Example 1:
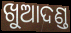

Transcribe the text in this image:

ଖୁଆଦଣ୍ଡ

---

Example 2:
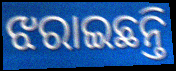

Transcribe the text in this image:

ଝରାଇଛନ୍ତି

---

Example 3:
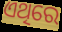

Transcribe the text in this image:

ଏଥିରେ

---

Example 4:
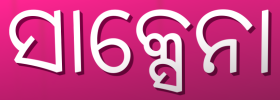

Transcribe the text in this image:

ସାକ୍ସେନା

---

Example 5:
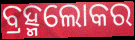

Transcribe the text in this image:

ବ୍ରହ୍ମଲୋକର